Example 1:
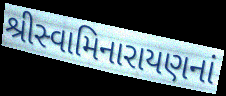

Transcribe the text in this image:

શ્રીસ્વામિનારાયણનાં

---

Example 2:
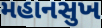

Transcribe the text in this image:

મહાનસુખ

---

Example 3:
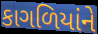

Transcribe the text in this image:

કાગળિયાંને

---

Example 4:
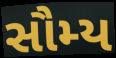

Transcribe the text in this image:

સૌમ્ય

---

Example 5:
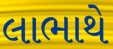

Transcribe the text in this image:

લાભાથે